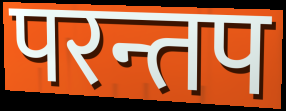
परन्तप